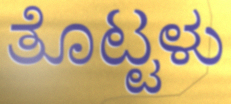
ತೊಟ್ಟಳು